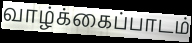
வாழ்க்கைப்பாடம்